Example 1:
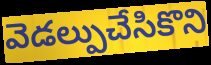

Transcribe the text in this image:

వెడల్పుచేసికొని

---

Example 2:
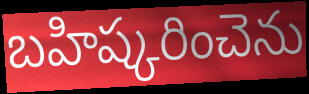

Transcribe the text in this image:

బహిష్కరించెను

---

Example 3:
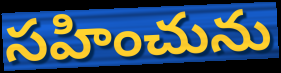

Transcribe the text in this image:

సహించును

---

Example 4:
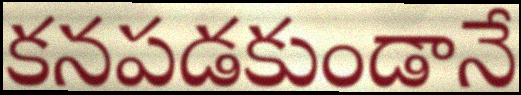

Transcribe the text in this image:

కనపడకుండానే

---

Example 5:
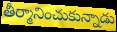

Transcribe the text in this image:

తీర్మానించుకున్నాడు